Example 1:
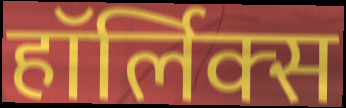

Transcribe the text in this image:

हॉर्लिक्‍स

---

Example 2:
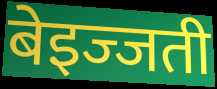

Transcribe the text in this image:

बेइज्‍जती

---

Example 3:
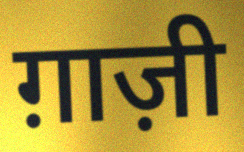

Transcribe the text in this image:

ग़ाज़ी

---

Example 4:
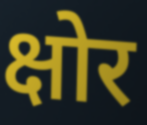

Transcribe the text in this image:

क्षोर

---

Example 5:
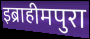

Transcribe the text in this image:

इब्राहीमपुरा